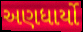
અણધાર્યો